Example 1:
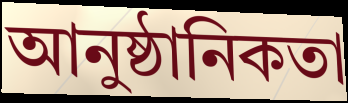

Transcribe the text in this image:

আনুষ্ঠানিকতা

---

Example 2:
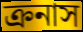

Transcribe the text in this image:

ক্রনাস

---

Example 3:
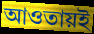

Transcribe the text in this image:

আওতায়ই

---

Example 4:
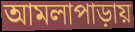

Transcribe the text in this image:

আমলাপাড়ায়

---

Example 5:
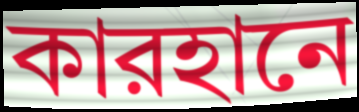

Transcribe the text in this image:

কারহানে